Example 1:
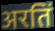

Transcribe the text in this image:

अरतिं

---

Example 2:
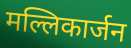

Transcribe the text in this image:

मल्लिकार्जन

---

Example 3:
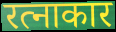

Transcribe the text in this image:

रत्नाकार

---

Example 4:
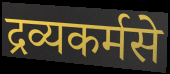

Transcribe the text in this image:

द्रव्यकर्मसे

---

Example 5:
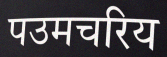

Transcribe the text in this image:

पउमचरिय